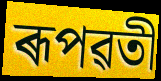
ৰূপৱতী